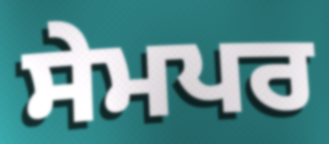
ਸੇਮਪਰ